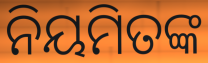
ନିୟମିତଙ୍କ